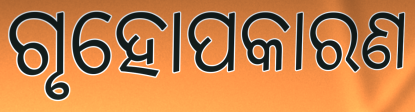
ଗୃହୋପକାରଣ